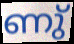
ണു്